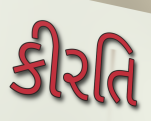
કીરતિ